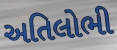
અતિલોભી